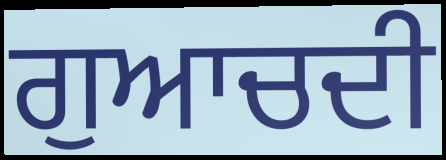
ਗੁਆਚਦੀ